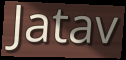
Jatav